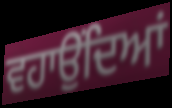
ਵਹਾਉਂਦਿਆਂ